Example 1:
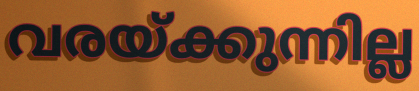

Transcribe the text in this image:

വരയ്ക്കുന്നില്ല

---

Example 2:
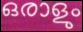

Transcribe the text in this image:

ഒരാളും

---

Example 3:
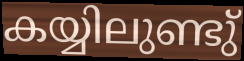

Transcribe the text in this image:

കയ്യിലുണ്ടു്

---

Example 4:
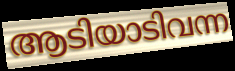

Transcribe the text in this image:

ആടിയാടിവന്ന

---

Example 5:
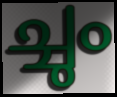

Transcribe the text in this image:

ച്ചും